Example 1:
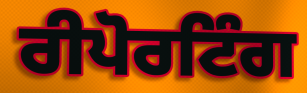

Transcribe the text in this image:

ਰੀਪੋਰਟਿੰਗ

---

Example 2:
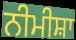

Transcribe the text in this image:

ਨੀਮੀਸ਼ਾ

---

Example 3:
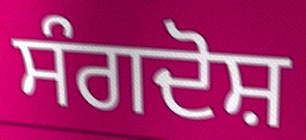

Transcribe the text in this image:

ਸੰਗਦੋਸ਼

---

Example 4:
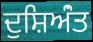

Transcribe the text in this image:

ਦੁਸ਼ਿਅਂੰਤ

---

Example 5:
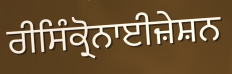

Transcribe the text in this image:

ਰੀਸਿੰਕ੍ਰੋਨਾਈਜ਼ੇਸ਼ਨ